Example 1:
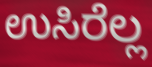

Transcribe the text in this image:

ಉಸಿರೆಲ್ಲ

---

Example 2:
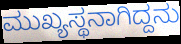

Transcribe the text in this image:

ಮುಖ್ಯಸ್ಥನಾಗಿದ್ದನು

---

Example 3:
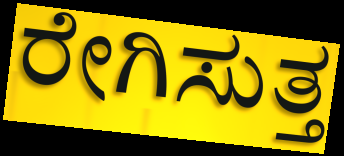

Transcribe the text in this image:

ರೇಗಿಸುತ್ತ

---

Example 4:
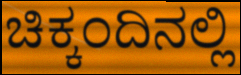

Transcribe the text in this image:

ಚಿಕ್ಕಂದಿನಲ್ಲಿ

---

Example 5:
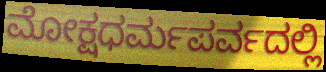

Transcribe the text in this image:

ಮೋಕ್ಷಧರ್ಮಪರ್ವದಲ್ಲಿ